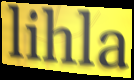
lihla